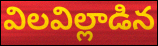
విలవిల్లాడిన